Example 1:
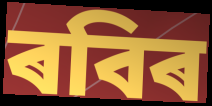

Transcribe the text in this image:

ৰবিৰ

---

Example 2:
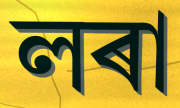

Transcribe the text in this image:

লৰা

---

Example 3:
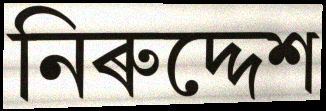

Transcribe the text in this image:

নিৰুদ্দেশ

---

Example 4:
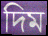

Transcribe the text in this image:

দিম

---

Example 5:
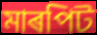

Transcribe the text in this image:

মাৰপিট